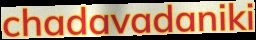
chadavadaniki